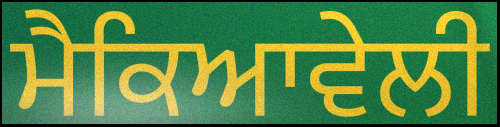
ਮੈਕਿਆਵੇਲੀ